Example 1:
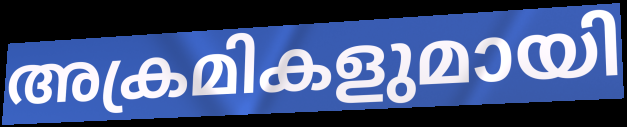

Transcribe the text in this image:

അക്രമികളുമായി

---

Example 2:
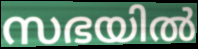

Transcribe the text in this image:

സഭയിൽ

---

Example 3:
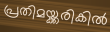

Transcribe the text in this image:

പ്രതിമയ്ക്കരികിൽ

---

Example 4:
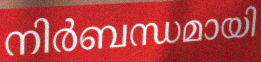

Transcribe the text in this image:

നിർബന്ധമായി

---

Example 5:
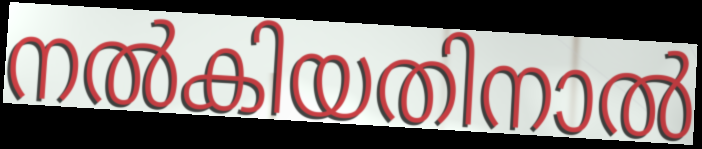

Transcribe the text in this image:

നൽകിയതിനാൽ